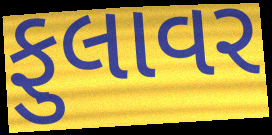
ફુલાવર